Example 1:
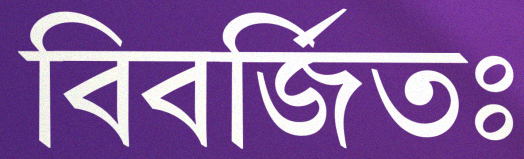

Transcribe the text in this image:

বিবর্জিতঃ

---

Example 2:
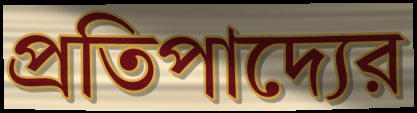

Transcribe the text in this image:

প্রতিপাদ্যের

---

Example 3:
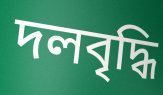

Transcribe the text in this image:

দলবৃদ্ধি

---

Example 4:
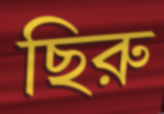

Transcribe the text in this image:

ছিরু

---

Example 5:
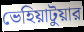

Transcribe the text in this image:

ভেহিয়াটুয়ার